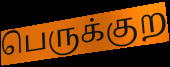
பெருக்குற